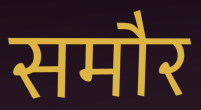
समौर